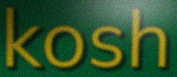
kosh